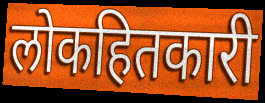
लोकहितकारी